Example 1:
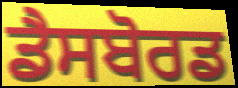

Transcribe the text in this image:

ਡੈਸਬੋਰਡ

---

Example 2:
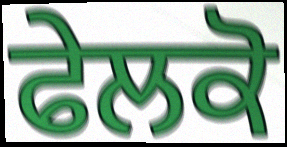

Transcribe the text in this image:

ਫੇਲਕੋ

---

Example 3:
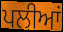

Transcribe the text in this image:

ਪਲੀਆਂ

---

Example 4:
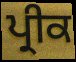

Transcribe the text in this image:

ਪ੍ਰੀਕ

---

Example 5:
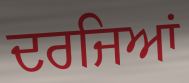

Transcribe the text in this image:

ਦਰਜਿਆਂ